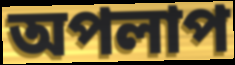
অপলাপ